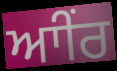
ਆੀਂਰ